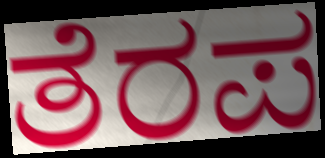
ತೆರಪ